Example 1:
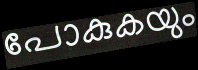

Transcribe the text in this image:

പോകുകയും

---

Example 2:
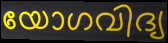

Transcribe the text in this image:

യോഗവിദ്യ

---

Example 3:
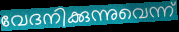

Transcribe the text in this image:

വേദനിക്കുന്നുവെന്ന്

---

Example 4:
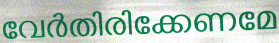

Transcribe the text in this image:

വേർതിരിക്കേണമേ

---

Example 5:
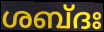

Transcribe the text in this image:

ശബ്ദഃ